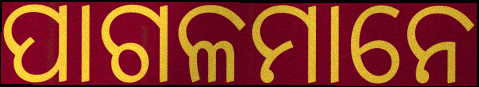
ପାଗଳମାନେ